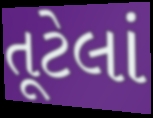
તૂટેલાં